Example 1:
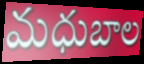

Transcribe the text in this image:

మధుబాల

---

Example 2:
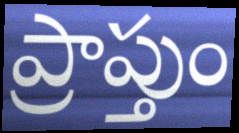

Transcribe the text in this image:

ప్రాప్తుం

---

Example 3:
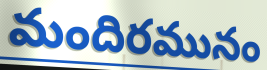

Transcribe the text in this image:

మందిరమునం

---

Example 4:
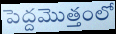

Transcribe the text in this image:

పెద్దమొత్తంలో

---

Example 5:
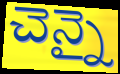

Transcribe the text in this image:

చెన్నై